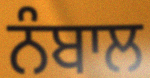
ਨੰਬਾਲ